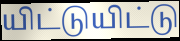
யிட்டுயிட்டு